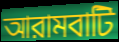
আরামবাটি